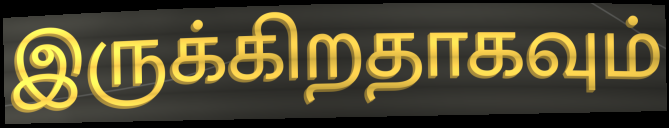
இருக்கிறதாகவும்